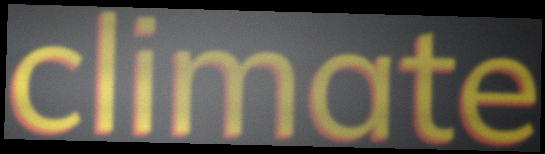
climate